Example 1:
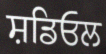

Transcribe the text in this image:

ਸ਼ਡਿਓਲ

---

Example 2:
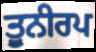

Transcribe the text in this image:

ਤੂਨੀਰਪ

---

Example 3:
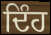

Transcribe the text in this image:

ਦਿੰਹ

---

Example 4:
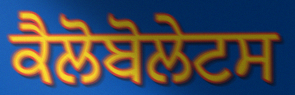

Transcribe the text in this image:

ਕੈਲੋਬੋਲੇਟਸ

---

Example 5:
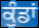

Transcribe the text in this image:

ਕੁੰਡਾਂ